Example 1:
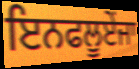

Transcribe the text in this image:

ਇਨਫਲੂਏਂਜਾ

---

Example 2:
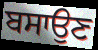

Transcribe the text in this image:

ਬਸਾਉਣ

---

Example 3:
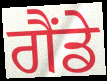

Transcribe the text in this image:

ਗੈਂਡੇ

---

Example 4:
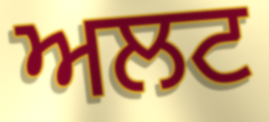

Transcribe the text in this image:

ਅਲਟ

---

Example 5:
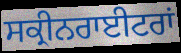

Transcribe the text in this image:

ਸਕ੍ਰੀਨਰਾਈਟਰਾਂ